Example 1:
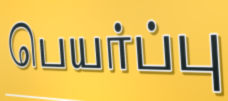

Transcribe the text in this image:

பெயர்ப்பு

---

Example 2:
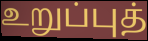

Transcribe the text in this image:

உறுப்புத்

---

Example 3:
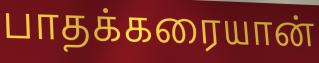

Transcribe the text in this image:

பாதக்கரையான்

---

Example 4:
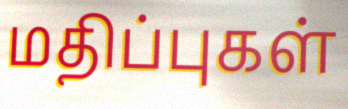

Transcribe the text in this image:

மதிப்புகள்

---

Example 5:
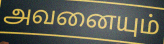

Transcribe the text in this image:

அவனையும்